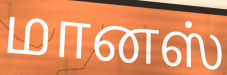
மானஸ்